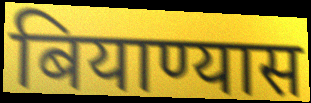
बियाण्यास